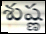
శుష్ణ